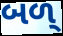
બળ્